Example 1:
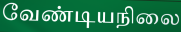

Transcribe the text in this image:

வேண்டியநிலை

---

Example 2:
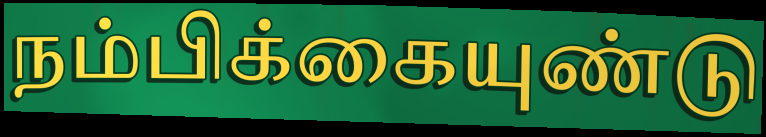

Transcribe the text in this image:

நம்பிக்கையுண்டு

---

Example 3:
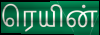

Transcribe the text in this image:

ரெயின்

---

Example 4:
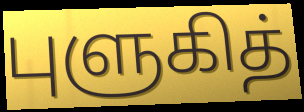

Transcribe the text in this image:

புளுகித்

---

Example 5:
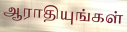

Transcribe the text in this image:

ஆராதியுங்கள்